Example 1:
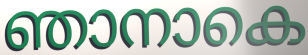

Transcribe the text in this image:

ഞാനാകെ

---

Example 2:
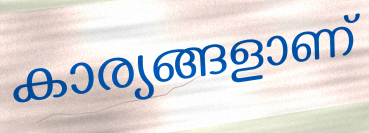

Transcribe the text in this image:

കാര്യങ്ങളാണ്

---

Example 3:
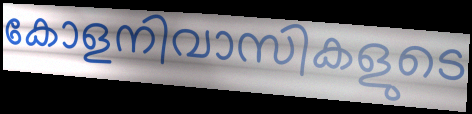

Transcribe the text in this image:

കോളനിവാസികളുടെ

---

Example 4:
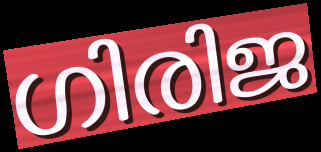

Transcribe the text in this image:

ഗിരിജ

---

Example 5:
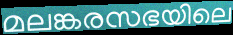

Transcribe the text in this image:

മലങ്കരസഭയിലെ